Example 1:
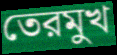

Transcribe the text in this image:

তেরমুখ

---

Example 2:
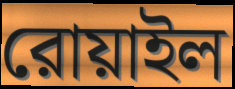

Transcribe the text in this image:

রোয়াইল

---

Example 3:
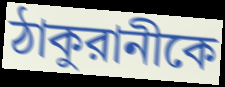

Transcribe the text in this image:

ঠাকুরানীকে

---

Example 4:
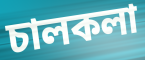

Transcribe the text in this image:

চালকলা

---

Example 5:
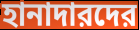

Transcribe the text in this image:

হানাদারদের